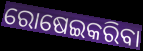
ରୋଷେଇକରିବା